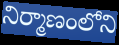
నిర్మాణంలోని